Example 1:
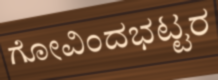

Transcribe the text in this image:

ಗೋವಿಂದಭಟ್ಟರ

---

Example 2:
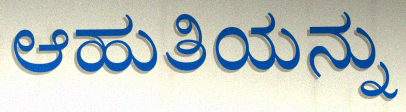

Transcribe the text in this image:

ಆಹುತಿಯನ್ನು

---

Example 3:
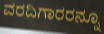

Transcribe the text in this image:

ವರದಿಗಾರರನ್ನೂ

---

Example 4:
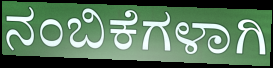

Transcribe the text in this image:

ನಂಬಿಕೆಗಳಾಗಿ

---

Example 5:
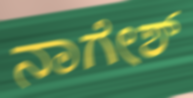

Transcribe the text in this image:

ನಾಗೇಶ್